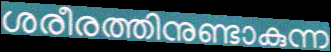
ശരീരത്തിനുണ്ടാകുന്ന